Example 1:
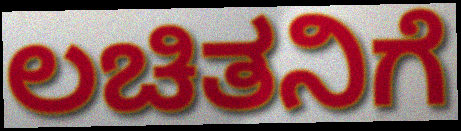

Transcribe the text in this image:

ಲಚಿತನಿಗೆ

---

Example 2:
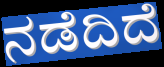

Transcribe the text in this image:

ನಡೆದಿದೆ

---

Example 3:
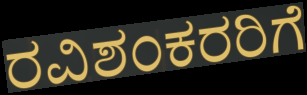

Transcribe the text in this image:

ರವಿಶಂಕರರಿಗೆ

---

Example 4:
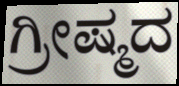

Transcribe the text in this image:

ಗ್ರೀಷ್ಮದ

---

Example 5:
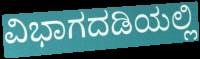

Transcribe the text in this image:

ವಿಭಾಗದಡಿಯಲ್ಲಿ